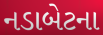
નડાબેટના